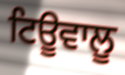
ਟਿਊਵਾਲੂ